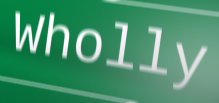
Wholly